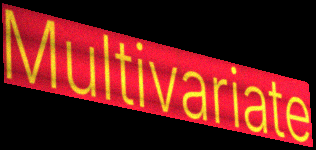
Multivariate